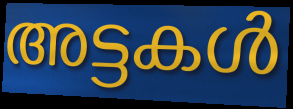
അട്ടകൾ